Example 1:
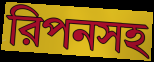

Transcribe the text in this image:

রিপনসহ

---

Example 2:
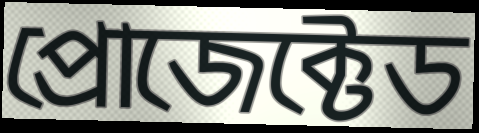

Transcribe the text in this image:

প্রোজেক্টেড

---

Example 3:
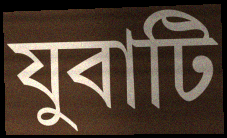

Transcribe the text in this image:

যুবাটি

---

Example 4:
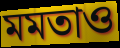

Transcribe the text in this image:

মমতাও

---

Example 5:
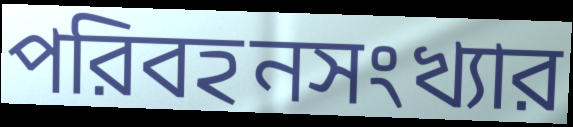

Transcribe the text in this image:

পরিবহনসংখ্যার